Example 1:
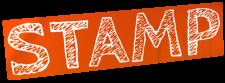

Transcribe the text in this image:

STAMP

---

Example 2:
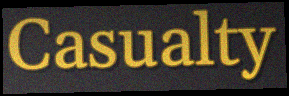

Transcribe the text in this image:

Casualty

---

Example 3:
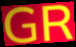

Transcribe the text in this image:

GR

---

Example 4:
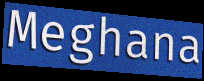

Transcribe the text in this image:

Meghana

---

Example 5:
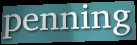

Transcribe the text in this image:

penning